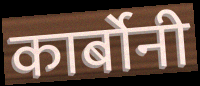
कार्बोनी